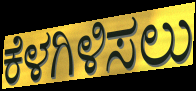
ಕೆಳಗಿಳಿಸಲು